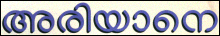
അരിയാനെ